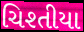
ચિશ્તીયા